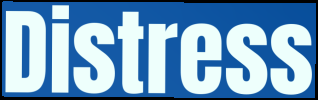
Distress